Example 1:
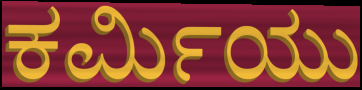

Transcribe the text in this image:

ಕರ್ಮಿಯು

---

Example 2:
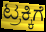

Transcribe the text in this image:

ಟ್ರಕ್ಕಿಗೆ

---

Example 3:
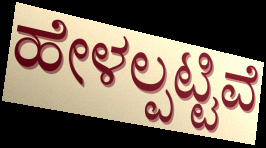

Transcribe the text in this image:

ಹೇಳಲ್ಪಟ್ಟಿವೆ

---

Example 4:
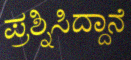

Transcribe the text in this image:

ಪ್ರಶ್ನಿಸಿದ್ದಾನೆ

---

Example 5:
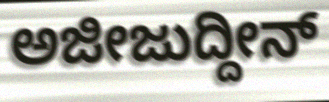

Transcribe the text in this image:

ಅಜೀಜುದ್ದೀನ್